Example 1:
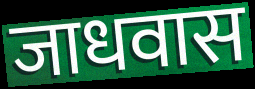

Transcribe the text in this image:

जाधवास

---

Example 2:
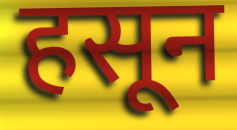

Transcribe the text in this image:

हसून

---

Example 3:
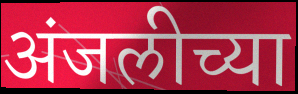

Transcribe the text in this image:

अंजलीच्या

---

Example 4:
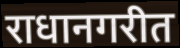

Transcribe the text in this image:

राधानगरीत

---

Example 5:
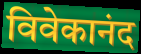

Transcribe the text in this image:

विवेकानंद